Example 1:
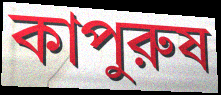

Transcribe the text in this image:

কাপুরুষ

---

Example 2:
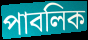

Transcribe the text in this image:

পাবলিক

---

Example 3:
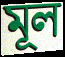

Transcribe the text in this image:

মূল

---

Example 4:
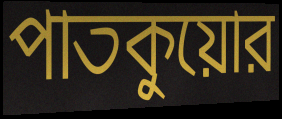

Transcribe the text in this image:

পাতকুয়োর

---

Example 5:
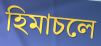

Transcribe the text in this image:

হিমাচলে